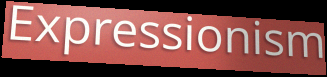
Expressionism